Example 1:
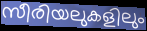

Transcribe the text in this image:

സീരിയലുകളിലും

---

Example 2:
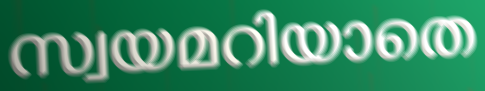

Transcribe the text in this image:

സ്വയമറിയാതെ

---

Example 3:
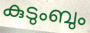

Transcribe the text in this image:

കുടുംബും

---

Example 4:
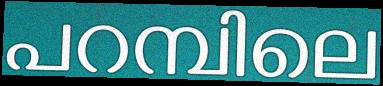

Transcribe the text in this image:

പറമ്പിലെ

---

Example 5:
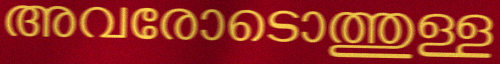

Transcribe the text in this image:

അവരോടൊത്തുള്ള